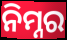
ନିମ୍ନର